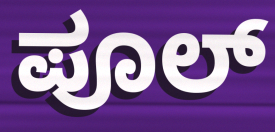
ಪೂಲ್